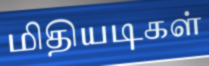
மிதியடிகள்